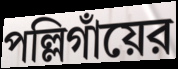
পল্লিগাঁয়ের